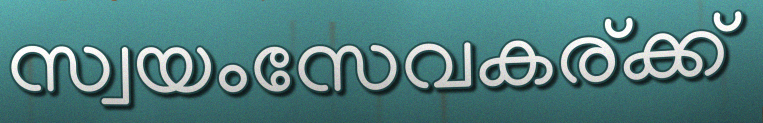
സ്വയംസേവകര്ക്ക്